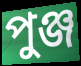
পুঞ্জ